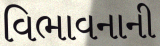
વિભાવનાની